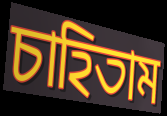
চাহিতাম